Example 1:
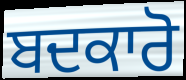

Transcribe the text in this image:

ਬਦਕਾਰੋ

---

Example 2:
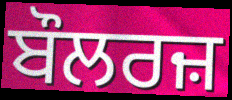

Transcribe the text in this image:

ਬੌਲਰਜ਼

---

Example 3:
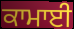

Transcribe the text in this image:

ਕਾਮਾਈ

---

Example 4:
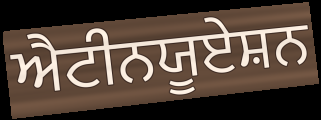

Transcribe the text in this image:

ਐਟੀਨਯੂਏਸ਼ਨ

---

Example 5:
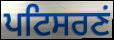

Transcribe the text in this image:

ਪਟਿਸਰਣਂ